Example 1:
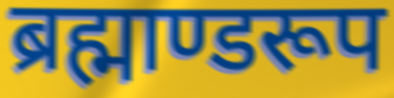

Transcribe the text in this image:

ब्रह्माण्डरूप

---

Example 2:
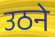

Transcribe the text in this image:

उठने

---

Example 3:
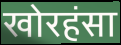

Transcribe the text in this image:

खोरहंसा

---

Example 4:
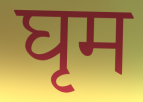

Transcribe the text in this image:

घृम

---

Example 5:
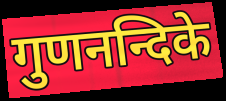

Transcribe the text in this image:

गुणनन्दिके